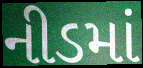
નીડમાં